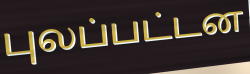
புலப்பட்டன